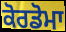
ਕੋਰਡੋਮਾ